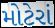
મોટેરાં